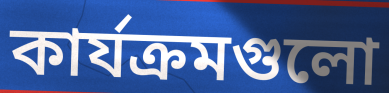
কার্যক্রমগুলো